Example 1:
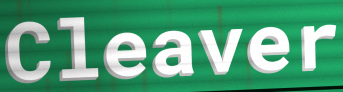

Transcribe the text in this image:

Cleaver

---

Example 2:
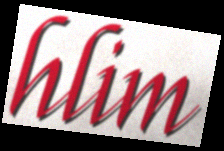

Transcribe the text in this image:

hlim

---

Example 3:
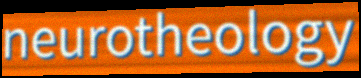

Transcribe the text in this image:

neurotheology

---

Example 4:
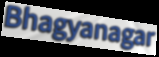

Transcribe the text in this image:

Bhagyanagar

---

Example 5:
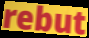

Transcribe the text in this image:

rebut